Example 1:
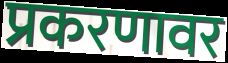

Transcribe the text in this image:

प्रकरणावर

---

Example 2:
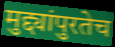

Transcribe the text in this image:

मुद्द्यांपुरतेच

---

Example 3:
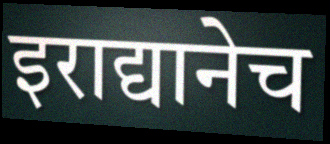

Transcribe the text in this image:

इराद्यानेच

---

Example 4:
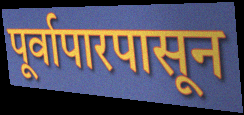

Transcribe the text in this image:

पूर्वापारपासून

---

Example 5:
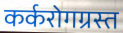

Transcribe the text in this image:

कर्करोगग्रस्त